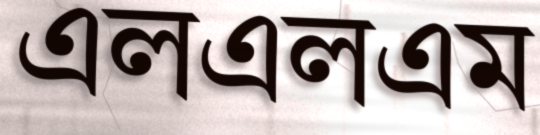
এলএলএম